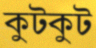
কুটকুট